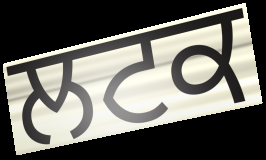
ਲਟਕ